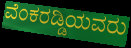
ವೆಂಕರಡ್ಡಿಯವರು